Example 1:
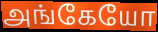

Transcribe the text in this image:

அங்கேயோ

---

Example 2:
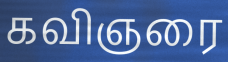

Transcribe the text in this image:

கவிஞரை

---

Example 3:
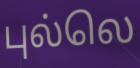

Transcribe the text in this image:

புல்லெ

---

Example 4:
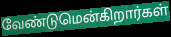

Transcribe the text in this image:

வேண்டுமென்கிறார்கள்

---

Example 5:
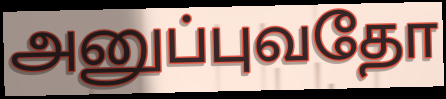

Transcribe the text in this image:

அனுப்புவதோ